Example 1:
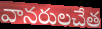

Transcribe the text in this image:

వానరులచేత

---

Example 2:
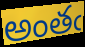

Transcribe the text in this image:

అంతఁ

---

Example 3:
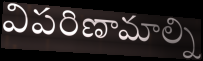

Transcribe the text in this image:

విపరిణామాల్ని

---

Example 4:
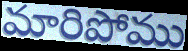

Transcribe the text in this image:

మారిపోము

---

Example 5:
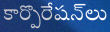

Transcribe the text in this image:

కార్పొరేషన్‌లు